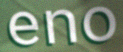
eno